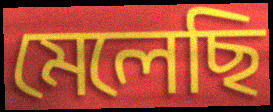
মেলেছি